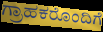
ಗ್ರಾಹಕರೊಂದಿಗೆ